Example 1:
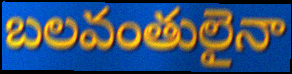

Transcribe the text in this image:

బలవంతులైనా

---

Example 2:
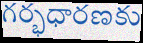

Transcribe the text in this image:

గర్భధారణకు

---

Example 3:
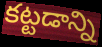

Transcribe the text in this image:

కట్టడాన్ని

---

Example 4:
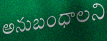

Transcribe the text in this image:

అనుబంధాలని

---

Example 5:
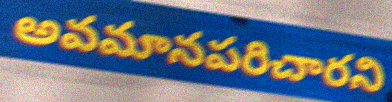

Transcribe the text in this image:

అవమానపరిచారని